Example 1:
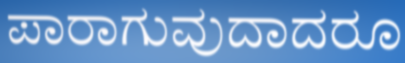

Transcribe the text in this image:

ಪಾರಾಗುವುದಾದರೂ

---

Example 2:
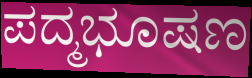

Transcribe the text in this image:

ಪದ್ಮಭೂಷಣ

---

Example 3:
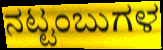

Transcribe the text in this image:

ನಟ್ಟಂಬುಗಳ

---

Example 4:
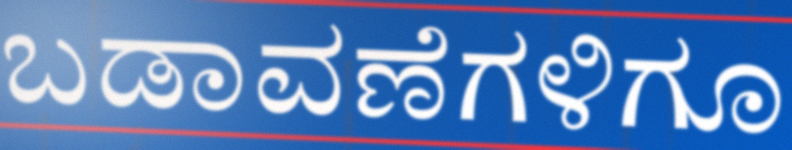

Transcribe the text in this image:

ಬಡಾವಣೆಗಳಿಗೂ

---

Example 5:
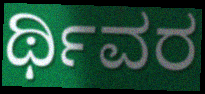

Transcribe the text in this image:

ರ್ಥಿವರ